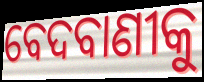
ବେଦବାଣୀକୁ